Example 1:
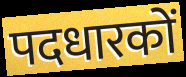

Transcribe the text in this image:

पदधारकों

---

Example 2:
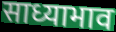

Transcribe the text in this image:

साध्याभाव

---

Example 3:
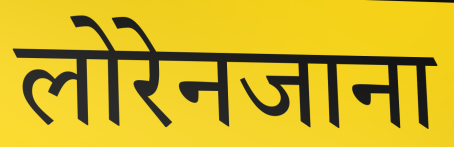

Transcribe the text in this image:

लोरेनजाना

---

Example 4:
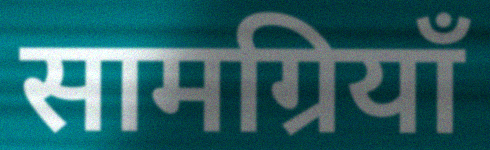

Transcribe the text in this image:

सामग्रियाँ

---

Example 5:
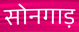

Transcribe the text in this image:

सोनगाड़